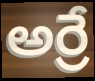
అర్రే